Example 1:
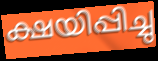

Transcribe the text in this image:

ക്ഷയിപ്പിച്ചു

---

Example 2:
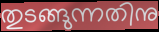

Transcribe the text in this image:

തുടങ്ങുന്നതിനു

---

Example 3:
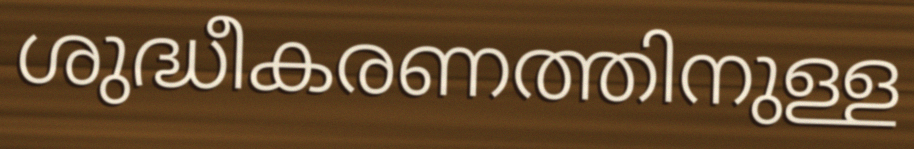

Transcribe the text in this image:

ശുദ്ധീകരണത്തിനുള്ള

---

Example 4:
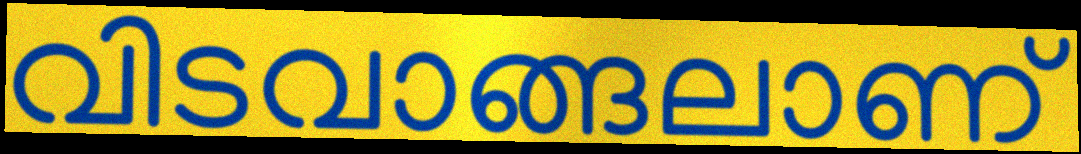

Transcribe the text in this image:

വിടവാങ്ങലാണ്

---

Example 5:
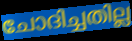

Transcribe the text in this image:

ചോദിച്ചതില്ല